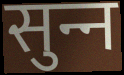
सुन्‍न